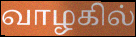
வாழகில்